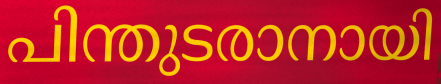
പിന്തുടരാനായി